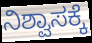
ನಿಶ್ವಾಸಕ್ಕೆ